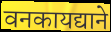
वनकायद्याने